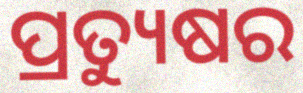
ପ୍ରତ୍ୟୁଷର